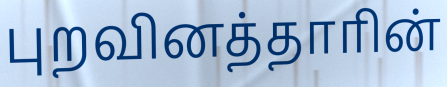
புறவினத்தாரின்